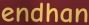
endhan